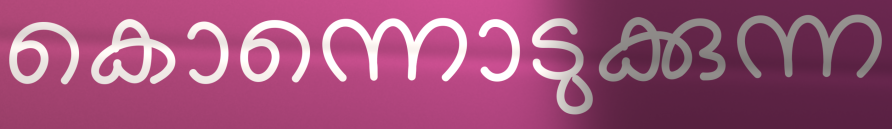
കൊന്നൊടുക്കുന്ന